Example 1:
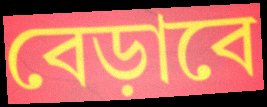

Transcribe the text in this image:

বেড়াবে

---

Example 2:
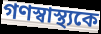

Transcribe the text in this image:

গণস্বাস্থ্যকে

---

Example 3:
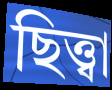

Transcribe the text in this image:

ছিত্ত্বা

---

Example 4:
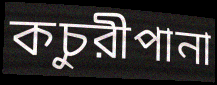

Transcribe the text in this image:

কচুরীপানা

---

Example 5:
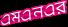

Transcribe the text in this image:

এমএনএর